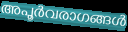
അപൂർവരാഗങ്ങൾ